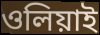
ওলিয়াই